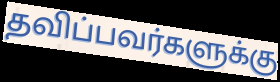
தவிப்பவர்களுக்கு